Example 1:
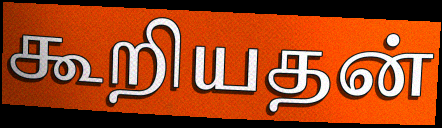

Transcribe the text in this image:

கூறியதன்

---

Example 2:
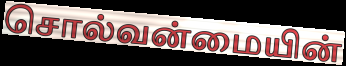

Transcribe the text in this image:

சொல்வன்மையின்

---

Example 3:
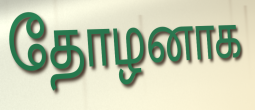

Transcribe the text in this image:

தோழனாக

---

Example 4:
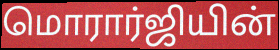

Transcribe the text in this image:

மொரார்ஜியின்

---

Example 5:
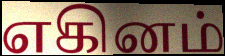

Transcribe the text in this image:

எகினம்